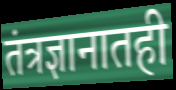
तंत्रज्ञानातही